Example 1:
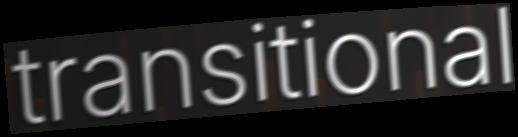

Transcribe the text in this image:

transitional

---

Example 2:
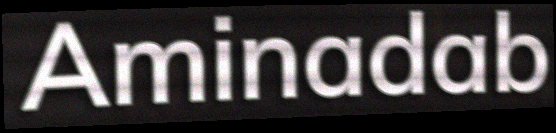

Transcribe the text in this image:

Aminadab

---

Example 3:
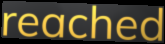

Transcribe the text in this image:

reached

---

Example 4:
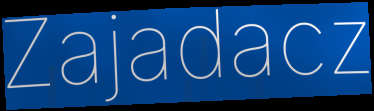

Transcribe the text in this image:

Zajadacz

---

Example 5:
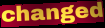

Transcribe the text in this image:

changed